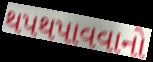
થપથપાવવાનો